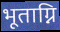
भूताग्नि